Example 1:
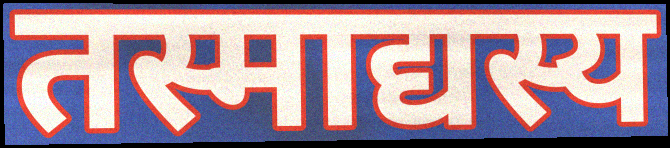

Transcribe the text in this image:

तस्माद्यस्य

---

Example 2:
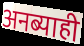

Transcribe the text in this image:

अनब्याही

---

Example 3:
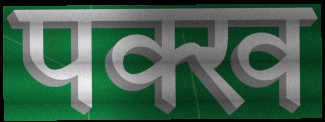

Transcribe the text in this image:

पक्ख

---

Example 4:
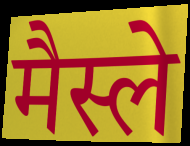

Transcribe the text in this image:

मैस्ले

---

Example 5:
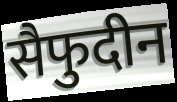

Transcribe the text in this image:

सैफुदीन